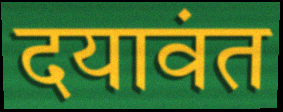
दयावंत